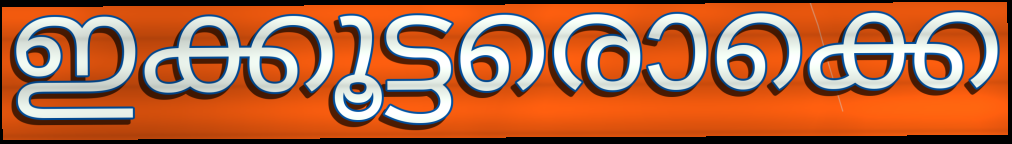
ഇക്കൂട്ടരൊക്കെ